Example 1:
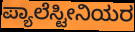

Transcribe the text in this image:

ಪ್ಯಾಲೆಸ್ಟೀನಿಯರ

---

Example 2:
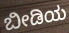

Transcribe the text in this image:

ಬೀಡಿಯ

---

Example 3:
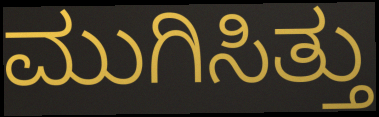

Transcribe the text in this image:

ಮುಗಿಸಿತ್ತು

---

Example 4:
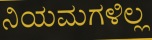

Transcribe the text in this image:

ನಿಯಮಗಳಿಲ್ಲ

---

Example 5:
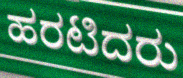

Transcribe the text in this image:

ಹರಟಿದರು